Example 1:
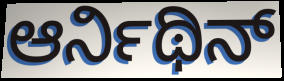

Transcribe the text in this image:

ಆರ್ನಿಥಿನ್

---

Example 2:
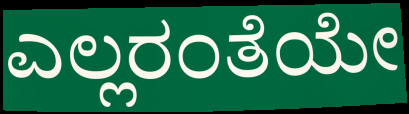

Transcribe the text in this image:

ಎಲ್ಲರಂತೆಯೇ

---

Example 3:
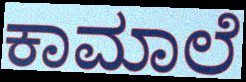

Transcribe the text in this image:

ಕಾಮಾಲೆ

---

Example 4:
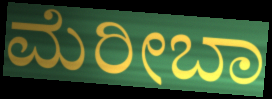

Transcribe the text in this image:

ಮೆರೀಬಾ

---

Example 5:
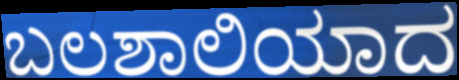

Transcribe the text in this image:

ಬಲಶಾಲಿಯಾದ